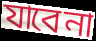
যাবেনা